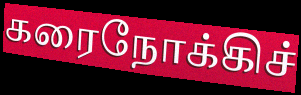
கரைநோக்கிச்